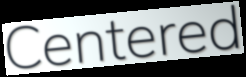
Centered